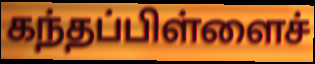
கந்தப்பிள்ளைச்